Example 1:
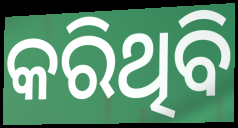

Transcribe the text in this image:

କରିଥିବି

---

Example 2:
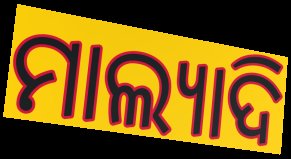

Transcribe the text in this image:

ମାଲ୍ୟାଦି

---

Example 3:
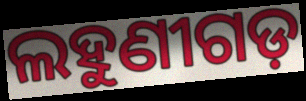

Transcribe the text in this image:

ଲହୁଣୀଗଡ଼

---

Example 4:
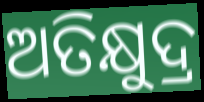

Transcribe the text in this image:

ଅତିକ୍ଷୁଦ୍ର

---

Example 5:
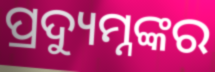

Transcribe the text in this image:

ପ୍ରଦ୍ୟୁମ୍ନଙ୍କର